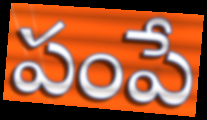
పంపే